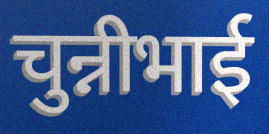
चुन्नीभाई